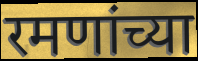
रमणांच्या